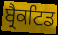
ਬ੍ਰੈਕਟਿਡ